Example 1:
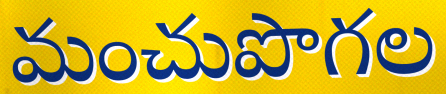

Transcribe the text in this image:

మంచుపొగల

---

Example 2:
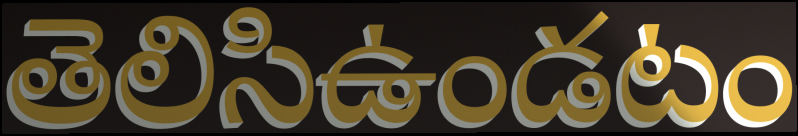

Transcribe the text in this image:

తెలిసిఉండటం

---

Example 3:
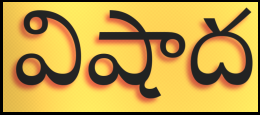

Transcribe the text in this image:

విషాద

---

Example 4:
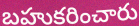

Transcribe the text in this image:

బహుకరించారు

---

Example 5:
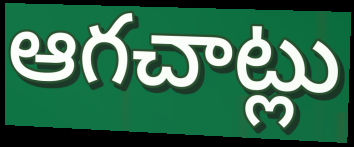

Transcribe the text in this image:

ఆగచాట్లు